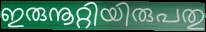
ഇരുനൂറ്റിയിരുപതു